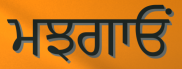
ਮਝਗਾਓਂ